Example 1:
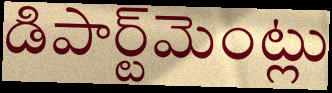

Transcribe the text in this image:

డిపార్ట్‌మెంట్లు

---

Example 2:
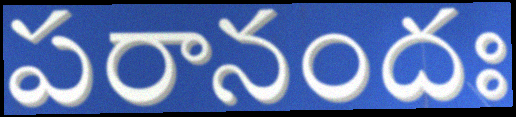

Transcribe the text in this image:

పరానందః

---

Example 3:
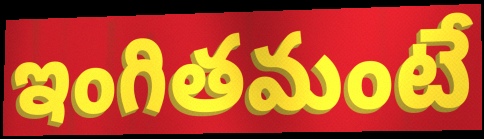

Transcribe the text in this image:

ఇంగితమంటే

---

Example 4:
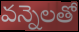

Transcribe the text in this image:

వన్నెలతో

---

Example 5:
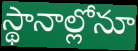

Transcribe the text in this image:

స్థానాల్లోనూ